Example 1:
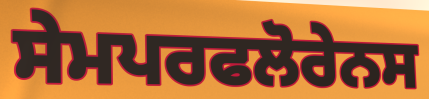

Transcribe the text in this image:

ਸੇਮਪਰਫਲੋਰੇਨਸ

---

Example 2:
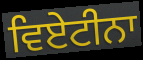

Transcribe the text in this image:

ਵਿਏਟੀਨਾ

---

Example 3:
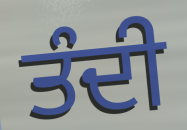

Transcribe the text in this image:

ਤੰਦੀ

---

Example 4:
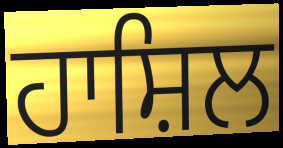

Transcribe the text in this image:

ਹਾਸ਼ਿਲ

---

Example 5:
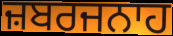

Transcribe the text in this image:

ਜ਼ਬਰਜਨਾਹ